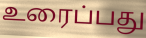
உரைப்பது